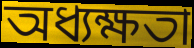
অধ্যক্ষতা